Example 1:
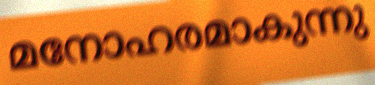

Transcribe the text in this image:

മനോഹരമാകുന്നു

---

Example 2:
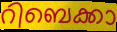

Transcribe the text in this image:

റിബെക്കാ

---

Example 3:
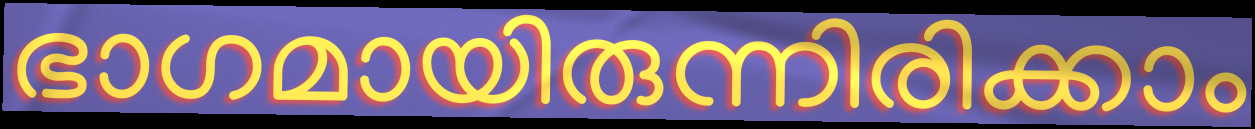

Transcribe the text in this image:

ഭാഗമായിരുന്നിരിക്കാം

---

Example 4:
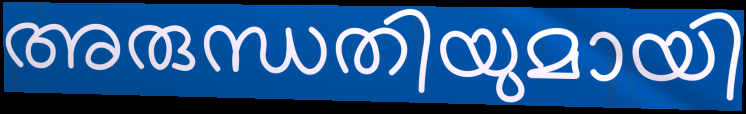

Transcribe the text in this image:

അരുന്ധതിയുമായി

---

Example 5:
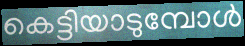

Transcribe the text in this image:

കെട്ടിയാടുമ്പോൾ